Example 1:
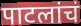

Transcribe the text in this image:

पाटलांचं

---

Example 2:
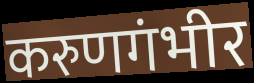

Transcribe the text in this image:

करुणगंभीर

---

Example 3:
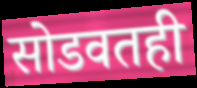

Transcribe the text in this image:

सोडवतही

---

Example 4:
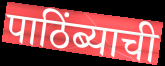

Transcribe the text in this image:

पाठिंब्याची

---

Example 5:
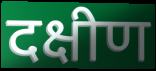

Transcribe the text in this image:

दक्षीण